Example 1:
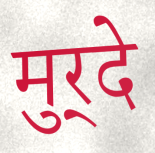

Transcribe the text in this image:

मुर्दे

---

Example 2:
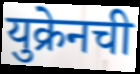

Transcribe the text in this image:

युक्रेनची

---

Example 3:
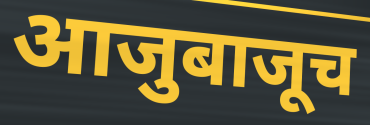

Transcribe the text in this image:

आजुबाजूच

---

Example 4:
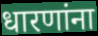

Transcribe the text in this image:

धारणांना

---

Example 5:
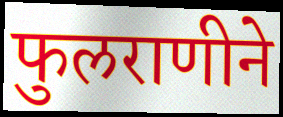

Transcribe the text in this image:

फुलराणीने